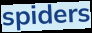
spiders